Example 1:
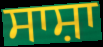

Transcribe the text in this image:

ਸਾਸ਼ਾ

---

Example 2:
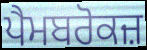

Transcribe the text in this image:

ਪੈਮਬਰੋਕਜ਼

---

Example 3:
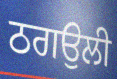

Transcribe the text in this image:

ਠਗਉਲੀ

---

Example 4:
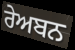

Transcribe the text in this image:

ਰੇਅਬਨ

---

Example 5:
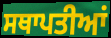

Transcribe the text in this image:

ਸਥਾਪਤੀਆਂ